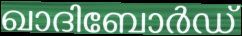
ഖാദിബോർഡ്